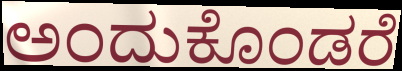
ಅಂದುಕೊಂಡರೆ